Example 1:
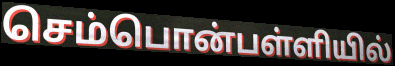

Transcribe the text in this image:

செம்பொன்பள்ளியில்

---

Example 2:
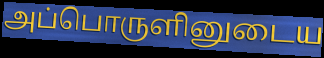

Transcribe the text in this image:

அப்பொருளினுடைய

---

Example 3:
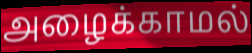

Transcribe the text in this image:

அழைக்காமல்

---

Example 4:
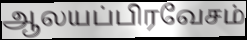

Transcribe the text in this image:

ஆலயப்பிரவேசம்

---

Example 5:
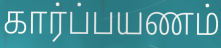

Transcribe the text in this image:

கார்ப்பயணம்